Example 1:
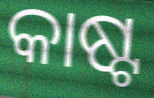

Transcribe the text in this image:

କାଷ୍ଟ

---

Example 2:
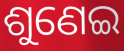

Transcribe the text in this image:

ଶୁଣେଇ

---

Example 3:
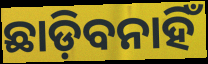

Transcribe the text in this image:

ଛାଡ଼ିବନାହିଁ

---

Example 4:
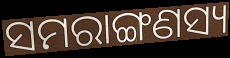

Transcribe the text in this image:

ସମରାଙ୍ଗଣସ୍ୟ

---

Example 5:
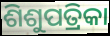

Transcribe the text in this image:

ଶିଶୁପତ୍ରିକା